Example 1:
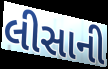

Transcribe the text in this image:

લીસાની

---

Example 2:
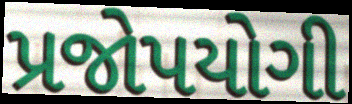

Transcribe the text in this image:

પ્રજોપયોગી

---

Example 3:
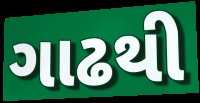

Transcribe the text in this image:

ગાઢથી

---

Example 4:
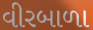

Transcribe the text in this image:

વીરબાળા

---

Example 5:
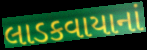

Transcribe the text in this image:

લાડકવાયાનાં